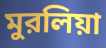
মুরলিয়া